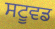
ਸਟੂਵਡ